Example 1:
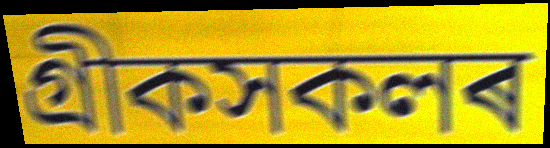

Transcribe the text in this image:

গ্ৰীকসকলৰ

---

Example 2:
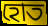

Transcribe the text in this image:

হোত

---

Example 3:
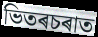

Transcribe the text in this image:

ভিতৰচৰাত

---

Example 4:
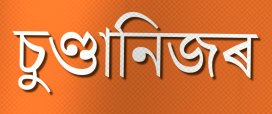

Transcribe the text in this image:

চুণ্ডানিজৰ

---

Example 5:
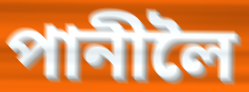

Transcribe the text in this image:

পানীলৈ